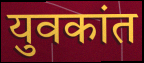
युवकांत